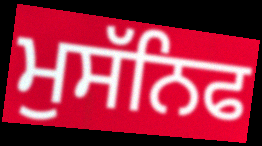
ਮੁਸੱਨਿਫ